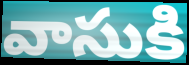
వాసుకి